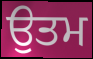
ਉਤਮ